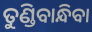
ତୁଣ୍ଡିବାନ୍ଧିବା